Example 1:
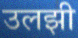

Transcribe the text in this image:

उलझी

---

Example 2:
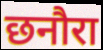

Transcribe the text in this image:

छनौरा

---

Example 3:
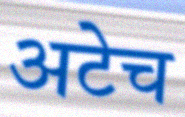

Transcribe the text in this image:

अटेच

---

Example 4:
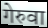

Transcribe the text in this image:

गेरुवा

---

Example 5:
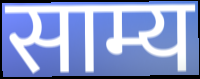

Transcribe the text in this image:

साम्‍य